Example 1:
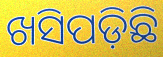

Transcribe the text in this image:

ଖସିପଡ଼ିଛି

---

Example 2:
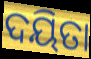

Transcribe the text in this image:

ଦୟିତା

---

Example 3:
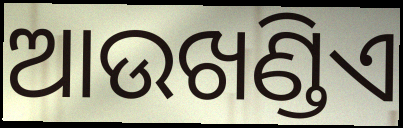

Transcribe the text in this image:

ଆଉଖଣ୍ଡିଏ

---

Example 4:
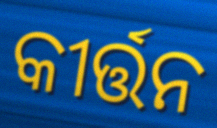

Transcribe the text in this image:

କୀର୍ତ୍ତନ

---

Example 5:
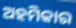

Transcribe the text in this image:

ଅହମିକାର